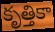
కృత్తికా